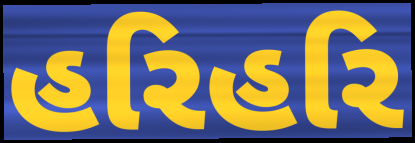
હરિહરિ